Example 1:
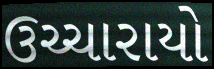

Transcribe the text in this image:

ઉચ્ચારાયો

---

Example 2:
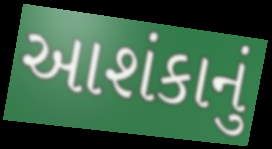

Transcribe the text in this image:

આશંકાનું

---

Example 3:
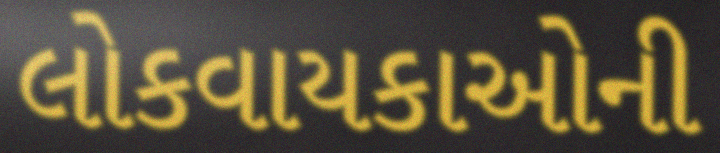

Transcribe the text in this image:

લોકવાયકાઓની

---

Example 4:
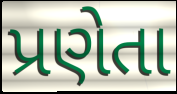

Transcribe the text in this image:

પ્રણેતા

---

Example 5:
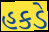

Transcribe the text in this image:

હકડે